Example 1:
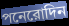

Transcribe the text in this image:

পনেরোদিন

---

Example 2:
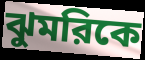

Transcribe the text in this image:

ঝুমরিকে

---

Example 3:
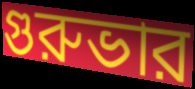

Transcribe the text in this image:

গুরুভার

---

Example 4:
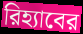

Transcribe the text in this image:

রিহ্যাবের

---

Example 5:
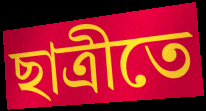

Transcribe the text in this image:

ছাত্রীতে